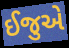
ઈજુએ